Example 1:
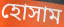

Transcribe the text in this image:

হোসাম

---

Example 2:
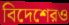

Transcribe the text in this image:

বিদেশেরও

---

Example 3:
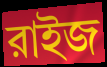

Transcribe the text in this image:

রাইজ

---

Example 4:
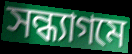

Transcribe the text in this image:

সন্ধ্যাগমে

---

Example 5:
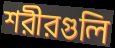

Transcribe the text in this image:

শরীরগুলি